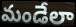
మండేలా